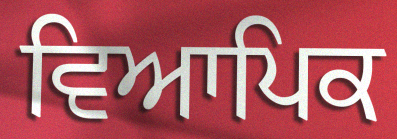
ਵਿਆਪਿਕ